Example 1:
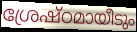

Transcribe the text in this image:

ശ്രേഷ്ഠമായീടും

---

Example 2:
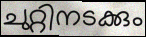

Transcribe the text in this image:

ചുറ്റിനടക്കും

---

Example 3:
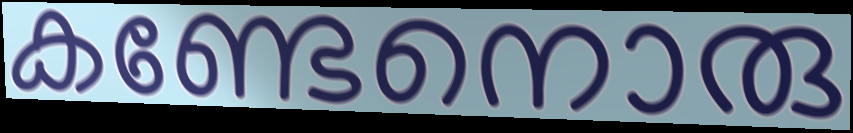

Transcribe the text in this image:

കണ്ടേനൊരു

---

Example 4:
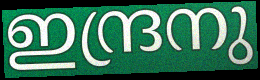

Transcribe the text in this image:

ഇന്ദ്രനു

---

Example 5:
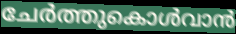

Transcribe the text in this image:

ചേർത്തുകൊൾവാൻ